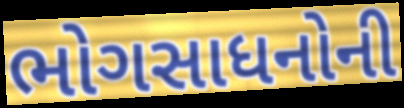
ભોગસાધનોની